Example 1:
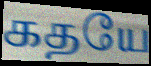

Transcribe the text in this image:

கதயே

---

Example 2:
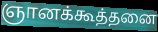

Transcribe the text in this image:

ஞானக்கூத்தனை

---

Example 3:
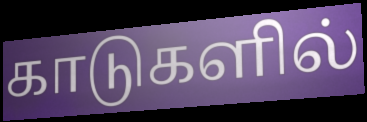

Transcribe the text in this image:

காடுகளில்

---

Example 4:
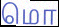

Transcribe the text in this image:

மொ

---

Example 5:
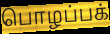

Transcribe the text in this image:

பொழப்பக்